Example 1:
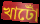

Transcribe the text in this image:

খাটোঁ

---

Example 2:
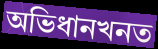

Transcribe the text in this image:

অভিধানখনত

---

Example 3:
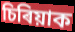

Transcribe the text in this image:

চিৰিয়াক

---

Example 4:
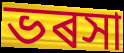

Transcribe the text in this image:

ভৰসা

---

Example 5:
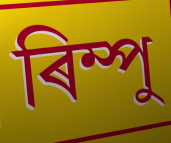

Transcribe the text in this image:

ৰিম্পু